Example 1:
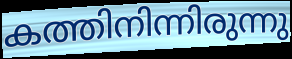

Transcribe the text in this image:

കത്തിനിന്നിരുന്നു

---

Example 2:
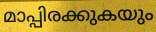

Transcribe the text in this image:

മാപ്പിരക്കുകയും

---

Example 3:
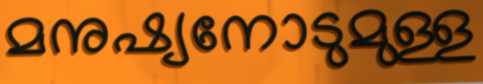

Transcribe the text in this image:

മനുഷ്യനോടുമുള്ള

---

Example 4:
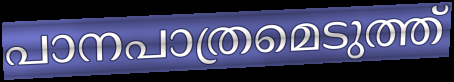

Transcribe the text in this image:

പാനപാത്രമെടുത്ത്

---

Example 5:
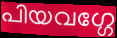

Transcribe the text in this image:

പിയവഗ്ഗേ